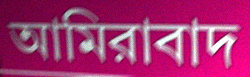
আমিরাবাদ